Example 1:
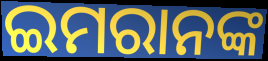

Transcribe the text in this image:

ଇମରାନଙ୍କ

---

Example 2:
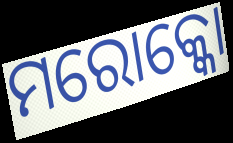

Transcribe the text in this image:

ମରୋକ୍କୋ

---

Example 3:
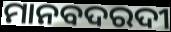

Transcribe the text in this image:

ମାନବଦରଦୀ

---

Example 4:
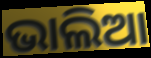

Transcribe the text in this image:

ଭାଲିଆ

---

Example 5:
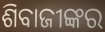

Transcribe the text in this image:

ଶିବାଜୀଙ୍କର